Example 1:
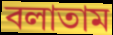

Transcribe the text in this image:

বলাতাম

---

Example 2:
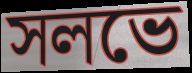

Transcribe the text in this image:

সলভে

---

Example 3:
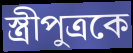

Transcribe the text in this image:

স্ত্রীপুত্রকে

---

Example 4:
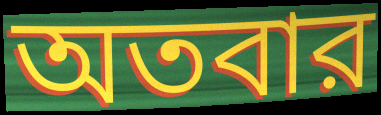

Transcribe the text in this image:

অতবার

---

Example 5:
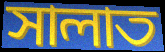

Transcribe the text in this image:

সালাত